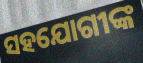
ସହଯୋଗୀଙ୍କ